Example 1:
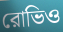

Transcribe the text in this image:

রোভিও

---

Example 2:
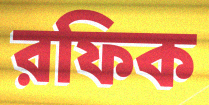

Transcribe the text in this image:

রফিক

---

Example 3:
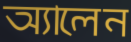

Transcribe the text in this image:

অ্যালেন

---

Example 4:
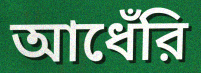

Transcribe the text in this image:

আধেঁরি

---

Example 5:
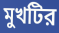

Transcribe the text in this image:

মুখটির